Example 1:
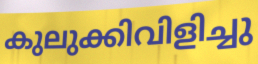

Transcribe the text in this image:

കുലുക്കിവിളിച്ചു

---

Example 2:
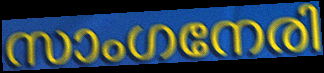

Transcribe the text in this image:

സാംഗനേരി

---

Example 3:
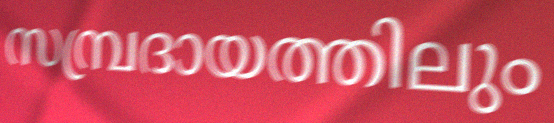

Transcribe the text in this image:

സമ്പ്രദായത്തിലും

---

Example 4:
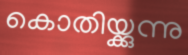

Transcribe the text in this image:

കൊതിയ്ക്കുന്നു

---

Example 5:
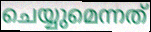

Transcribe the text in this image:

ചെയ്യുമെന്നത്